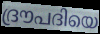
ദ്രൗപദിയെ